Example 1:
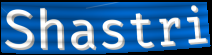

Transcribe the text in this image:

Shastri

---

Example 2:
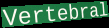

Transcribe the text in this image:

Vertebral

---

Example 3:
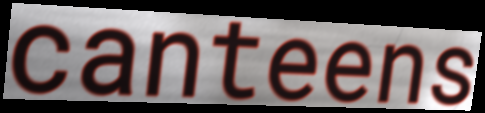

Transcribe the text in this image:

canteens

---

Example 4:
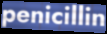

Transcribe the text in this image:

penicillin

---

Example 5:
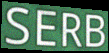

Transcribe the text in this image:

SERB